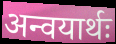
अन्वयार्थः